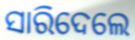
ସାରିଦେଲେ